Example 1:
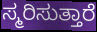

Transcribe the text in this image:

ಸ್ಮರಿಸುತ್ತಾರೆ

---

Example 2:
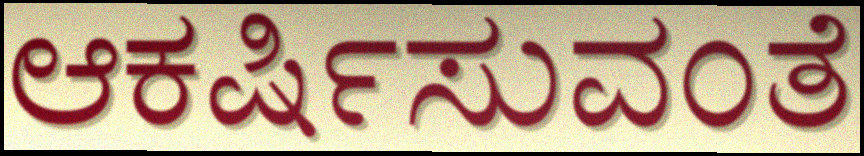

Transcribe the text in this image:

ಆಕರ್ಷಿಸುವಂತೆ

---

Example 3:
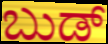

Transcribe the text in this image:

ಬುಡ್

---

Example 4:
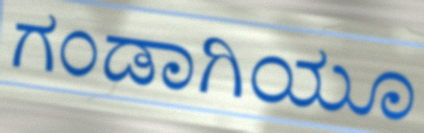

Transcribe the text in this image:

ಗಂಡಾಗಿಯೂ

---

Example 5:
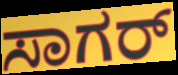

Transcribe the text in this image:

ಸಾಗರ್